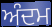
ਅੰਦਮ